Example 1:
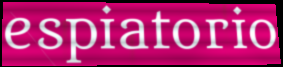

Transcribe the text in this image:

espiatorio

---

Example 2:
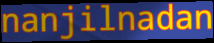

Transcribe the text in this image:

nanjilnadan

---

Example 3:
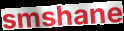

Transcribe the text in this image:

smshane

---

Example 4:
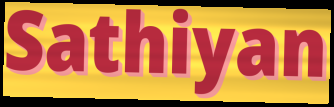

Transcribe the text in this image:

Sathiyan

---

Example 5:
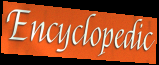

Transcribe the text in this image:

Encyclopedic